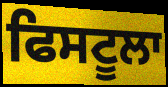
ਫਿਸਟੂਲਾ